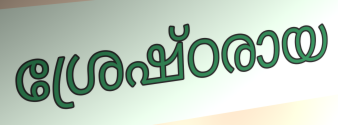
ശ്രേഷ്ഠരായ